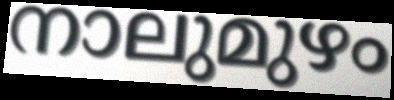
നാലുമുഴം